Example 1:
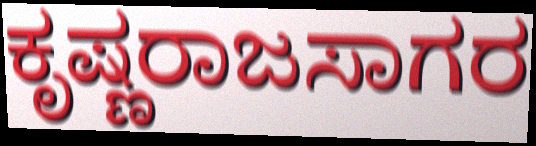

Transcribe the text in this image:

ಕೃಷ್ಣರಾಜಸಾಗರ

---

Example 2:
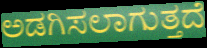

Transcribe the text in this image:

ಅಡಗಿಸಲಾಗುತ್ತದೆ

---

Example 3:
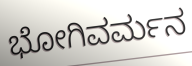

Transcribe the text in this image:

ಭೋಗಿವರ್ಮನ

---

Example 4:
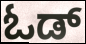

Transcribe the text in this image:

ಓಡ್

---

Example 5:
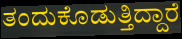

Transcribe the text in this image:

ತಂದುಕೊಡುತ್ತಿದ್ದಾರೆ